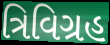
ત્રિવિગ્રહ